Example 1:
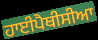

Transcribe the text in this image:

ਹਾਈਪੈਥੀਸੀਆ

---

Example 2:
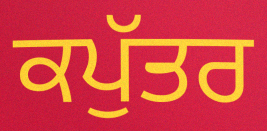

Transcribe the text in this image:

ਕਪੁੱਤਰ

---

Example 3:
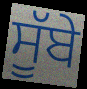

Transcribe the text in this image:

ਸੂੱਬੇ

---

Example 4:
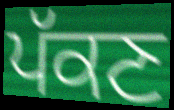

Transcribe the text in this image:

ਪੱਕਣ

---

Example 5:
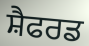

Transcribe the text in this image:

ਸ਼ੈਫਰਡ